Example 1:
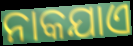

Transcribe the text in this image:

ନାକଯାଏ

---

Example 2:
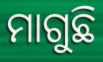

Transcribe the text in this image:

ମାଗୁଛି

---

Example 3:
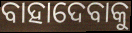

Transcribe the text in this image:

ବାହାଦେବାକୁ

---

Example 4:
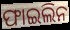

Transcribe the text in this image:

ଫାଇଲିନ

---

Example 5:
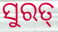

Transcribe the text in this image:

ସୁରତ୍